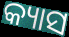
କ୍ୟାସ